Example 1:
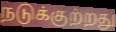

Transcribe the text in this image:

நடுக்குற்றது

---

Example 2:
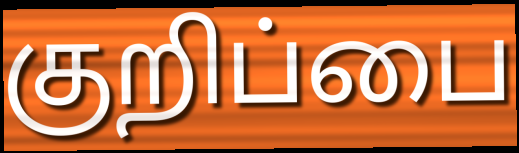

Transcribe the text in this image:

குறிப்பை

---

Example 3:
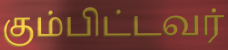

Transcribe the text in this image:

கும்பிட்டவர்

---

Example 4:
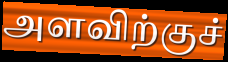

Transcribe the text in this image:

அளவிற்குச்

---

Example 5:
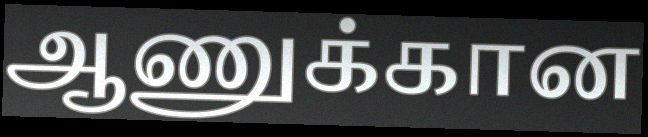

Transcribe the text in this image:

ஆணுக்கான